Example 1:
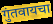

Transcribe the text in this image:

गुंतवायचा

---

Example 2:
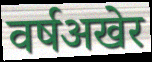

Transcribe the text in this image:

वर्षअखेर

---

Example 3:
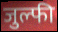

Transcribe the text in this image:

जुल्फी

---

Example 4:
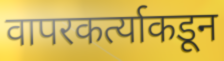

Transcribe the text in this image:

वापरकर्त्याकडून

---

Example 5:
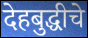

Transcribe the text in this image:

देहबुद्धीचे